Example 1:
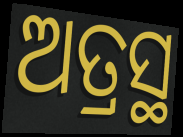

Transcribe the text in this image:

ଅତ୍ରସ୍ଥ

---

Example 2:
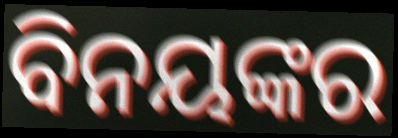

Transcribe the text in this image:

ବିନୟଙ୍କର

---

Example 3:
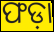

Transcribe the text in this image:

ଫଡ଼ା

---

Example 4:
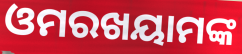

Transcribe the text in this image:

ଓମରଖୟାମଙ୍କ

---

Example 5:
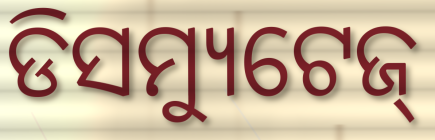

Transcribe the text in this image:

ଡିସମ୍ୟୁଟେଜ୍